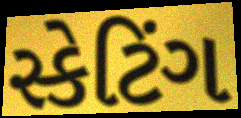
સ્કેટિંગ